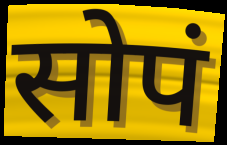
सोपं